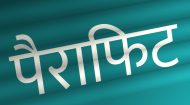
पैराफिट